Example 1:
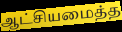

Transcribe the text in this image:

ஆட்சியமைத்த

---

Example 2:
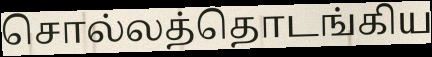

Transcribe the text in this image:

சொல்லத்தொடங்கிய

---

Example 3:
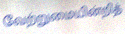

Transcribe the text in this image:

வேற்றுமையின்றித்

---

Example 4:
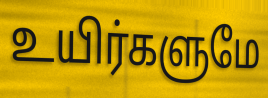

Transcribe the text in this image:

உயிர்களுமே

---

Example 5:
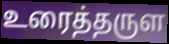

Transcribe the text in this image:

உரைத்தருள